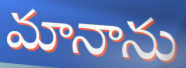
మానాను